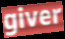
giver